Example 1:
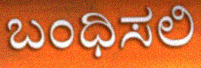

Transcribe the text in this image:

ಬಂಧಿಸಲಿ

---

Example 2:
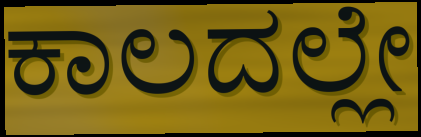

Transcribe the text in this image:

ಕಾಲದಲ್ಲೇ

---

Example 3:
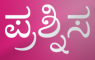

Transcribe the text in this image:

ಪ್ರಶ್ನಿಸ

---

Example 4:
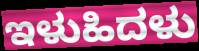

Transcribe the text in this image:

ಇಳುಹಿದಳು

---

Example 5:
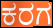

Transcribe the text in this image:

ಕರಗ